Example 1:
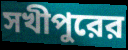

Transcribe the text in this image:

সখীপুরের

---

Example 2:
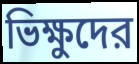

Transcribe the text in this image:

ভিক্ষুদের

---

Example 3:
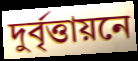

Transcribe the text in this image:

দুর্বৃত্তায়নে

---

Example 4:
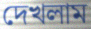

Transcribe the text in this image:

দেখলাম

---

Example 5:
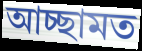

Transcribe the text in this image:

আচ্ছামত